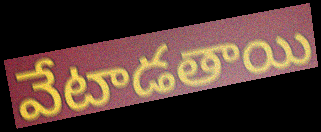
వేటాడతాయి